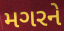
મગરને